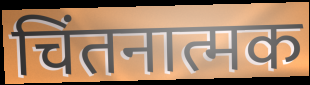
चिंतनात्मक